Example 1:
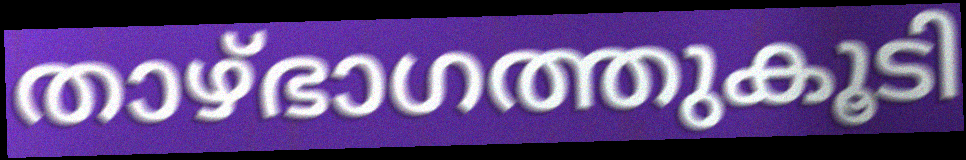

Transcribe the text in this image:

താഴ്ഭാഗത്തുകൂടി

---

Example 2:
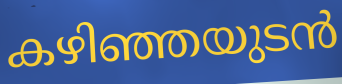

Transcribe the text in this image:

കഴിഞ്ഞയുടൻ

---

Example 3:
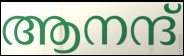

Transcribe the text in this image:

ആനന്ദ്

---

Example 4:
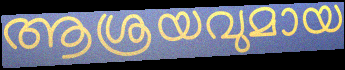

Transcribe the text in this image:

ആശ്രയവുമായ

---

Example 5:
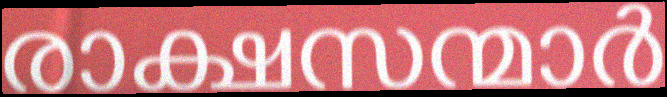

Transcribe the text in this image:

രാക്ഷസന്മാർ